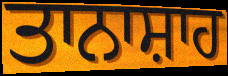
ਤਾਨਾਸ਼ਾਹ